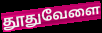
தூதுவேளை